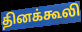
தினக்கூலி